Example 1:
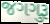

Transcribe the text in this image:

જગગુરૂ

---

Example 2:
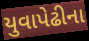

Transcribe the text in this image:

યુવાપેઢીના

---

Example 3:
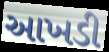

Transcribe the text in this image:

આખડી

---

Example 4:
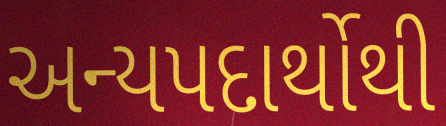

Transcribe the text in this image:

અન્યપદાર્થોથી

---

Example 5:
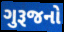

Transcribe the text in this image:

ગુરૂજનો